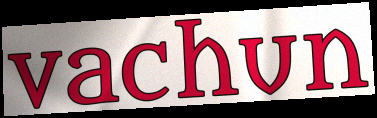
vachun